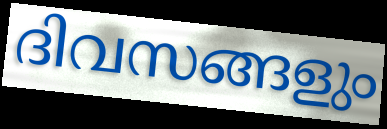
ദിവസങ്ങളും